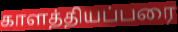
காளத்தியப்பரை